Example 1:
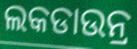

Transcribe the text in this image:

ଲକଡାଉନ୍ର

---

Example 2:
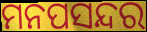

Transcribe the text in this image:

ମନପସନ୍ଦର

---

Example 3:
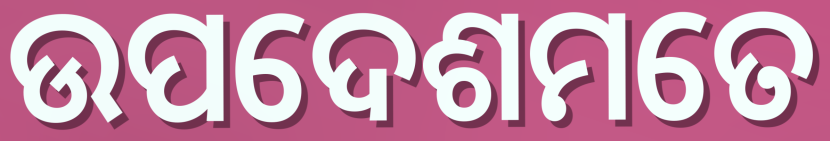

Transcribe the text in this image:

ଉପଦେଶମତେ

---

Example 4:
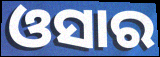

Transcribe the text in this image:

ଓସାର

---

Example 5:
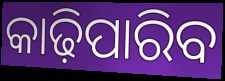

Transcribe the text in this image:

କାଢ଼ିପାରିବ